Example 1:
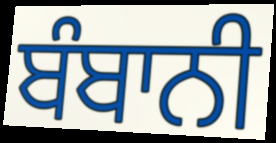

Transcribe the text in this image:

ਬੰਬਾਨੀ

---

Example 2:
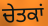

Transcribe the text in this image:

ਚੇਤਕਾਂ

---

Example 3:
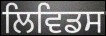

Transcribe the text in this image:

ਲਿਵਿਡਸ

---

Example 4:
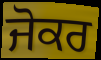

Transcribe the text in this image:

ਜੋਕਰ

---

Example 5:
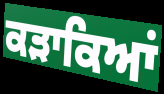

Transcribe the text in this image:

ਕੜਾਕਿਆਂ